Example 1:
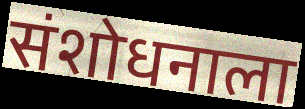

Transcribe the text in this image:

संशोधनाला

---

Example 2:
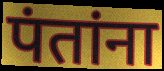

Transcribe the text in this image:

पंतांना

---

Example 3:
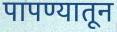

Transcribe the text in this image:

पापण्यातून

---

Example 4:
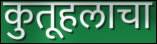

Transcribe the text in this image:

कुतूहलाचा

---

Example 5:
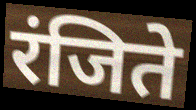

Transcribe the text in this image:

रंजिते